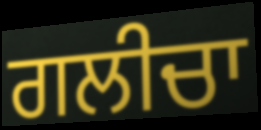
ਗਲੀਚਾ